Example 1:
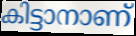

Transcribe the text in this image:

കിട്ടാനാണ്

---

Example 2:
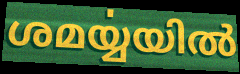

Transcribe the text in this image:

ശമൎയ്യയിൽ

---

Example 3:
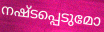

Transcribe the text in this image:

നഷ്ടപ്പെടുമോ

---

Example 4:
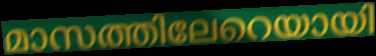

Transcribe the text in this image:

മാസത്തിലേറെയായി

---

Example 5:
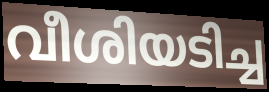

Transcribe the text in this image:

വീശിയടിച്ച